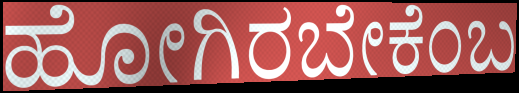
ಹೋಗಿರಬೇಕೆಂಬ